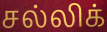
சல்லிக்